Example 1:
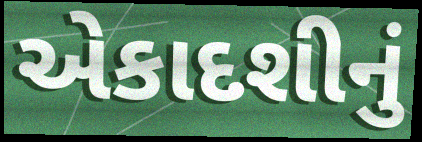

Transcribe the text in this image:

એકાદશીનું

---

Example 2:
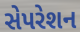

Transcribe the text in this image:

સેપરેશન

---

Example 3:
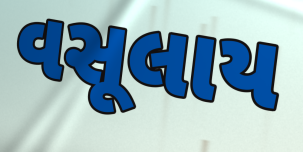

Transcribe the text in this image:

વસૂલાય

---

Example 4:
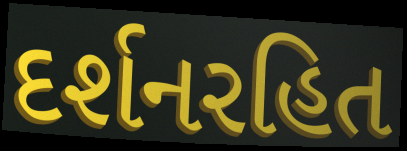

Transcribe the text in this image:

દર્શનરહિત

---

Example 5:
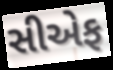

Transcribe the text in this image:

સીએફ